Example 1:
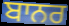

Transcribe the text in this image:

ਬਾਨਰ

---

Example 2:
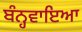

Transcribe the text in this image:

ਬੰਨ੍ਹਵਾਇਆ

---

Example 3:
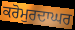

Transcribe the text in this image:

ਕਰੋਮੁਰਦਾਘਰ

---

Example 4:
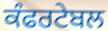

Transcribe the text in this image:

ਕੰਫਰਟੇਬਲ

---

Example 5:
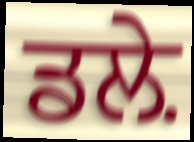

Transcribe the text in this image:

ਡਲ਼ੇ